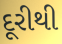
દૂરીથી